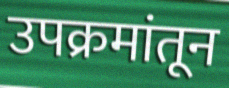
उपक्रमांतून